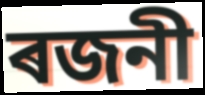
ৰজনী